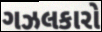
ગઝલકારો